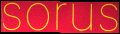
sorus